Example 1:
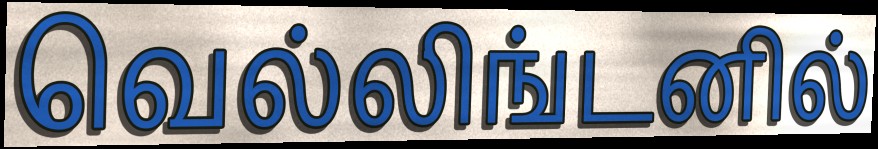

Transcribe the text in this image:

வெல்லிங்டனில்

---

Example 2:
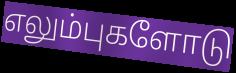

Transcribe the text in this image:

எலும்புகளோடு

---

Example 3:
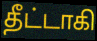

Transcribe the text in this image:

தீட்டாகி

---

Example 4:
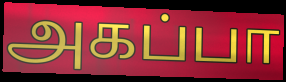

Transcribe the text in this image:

அகப்பா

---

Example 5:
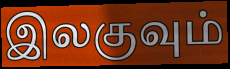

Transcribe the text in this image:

இலகுவும்